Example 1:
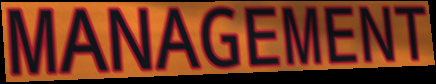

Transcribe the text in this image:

MANAGEMENT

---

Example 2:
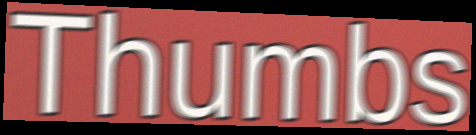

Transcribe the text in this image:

Thumbs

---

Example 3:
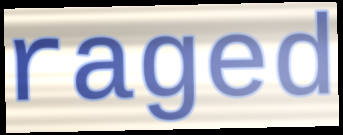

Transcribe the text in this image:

raged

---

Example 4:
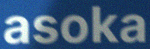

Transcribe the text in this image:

asoka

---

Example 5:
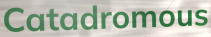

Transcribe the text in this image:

Catadromous